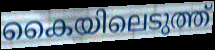
കൈയിലെടുത്ത്